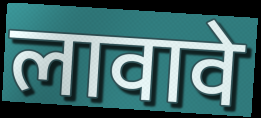
लावावे